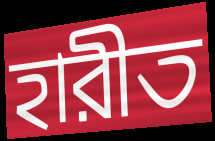
হারীত